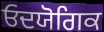
ਓਦਯੋਗਿਕ